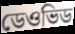
ডেওভিড